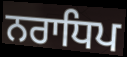
ਨਰਾਧਿਪ